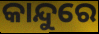
କାନ୍ଦୁରେ